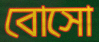
বোসো